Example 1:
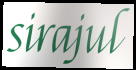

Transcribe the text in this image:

sirajul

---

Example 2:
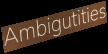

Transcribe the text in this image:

Ambigutities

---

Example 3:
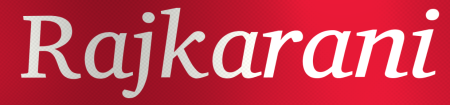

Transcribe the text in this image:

Rajkarani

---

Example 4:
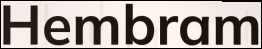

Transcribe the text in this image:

Hembram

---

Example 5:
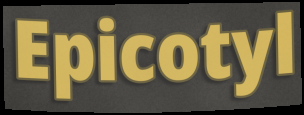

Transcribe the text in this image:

Epicotyl